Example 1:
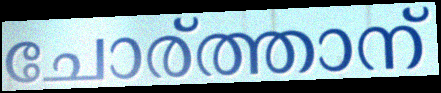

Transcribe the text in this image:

ചോര്ത്താന്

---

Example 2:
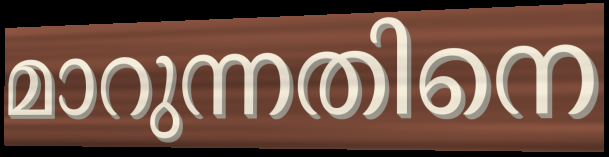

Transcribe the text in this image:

മാറുന്നതിനെ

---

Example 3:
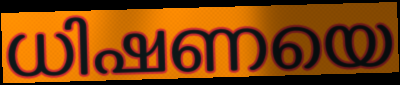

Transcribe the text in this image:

ധിഷണയെ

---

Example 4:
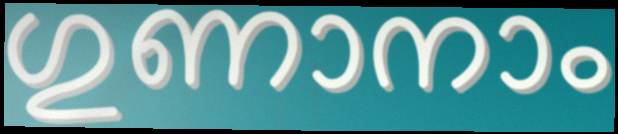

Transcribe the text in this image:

ഗുണാനാം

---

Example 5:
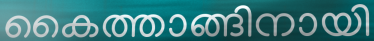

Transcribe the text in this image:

കൈത്താങ്ങിനായി